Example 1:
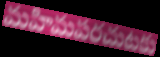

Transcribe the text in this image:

మహిమపరచుటకు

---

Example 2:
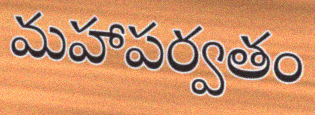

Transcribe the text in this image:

మహాపర్వతం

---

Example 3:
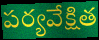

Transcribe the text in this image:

పర్యవేక్షిత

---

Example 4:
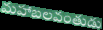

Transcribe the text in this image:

మహాబలవంతుడు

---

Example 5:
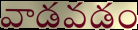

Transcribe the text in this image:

వాడవడం